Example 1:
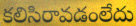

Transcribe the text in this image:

కలిసిరావడంలేదు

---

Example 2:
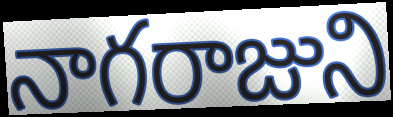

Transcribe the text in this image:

నాగరాజుని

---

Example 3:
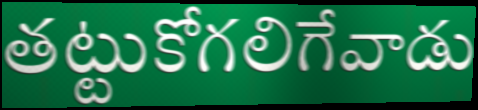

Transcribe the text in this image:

తట్టుకోగలిగేవాడు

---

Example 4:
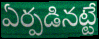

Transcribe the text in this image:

ఏర్పడినట్టే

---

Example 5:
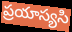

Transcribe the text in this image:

ప్రయాస్యసి